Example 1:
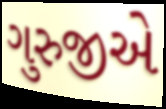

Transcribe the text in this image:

ગુરુજીએ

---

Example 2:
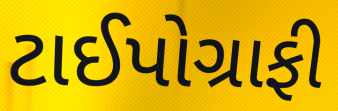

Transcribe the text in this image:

ટાઈપોગ્રાફી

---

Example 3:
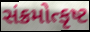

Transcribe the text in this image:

સંક્રમોત્કૃષ્ટ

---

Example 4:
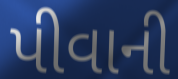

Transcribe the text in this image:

પીવાની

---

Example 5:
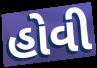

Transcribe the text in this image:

હોવી